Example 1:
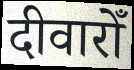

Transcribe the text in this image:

दीवारोँ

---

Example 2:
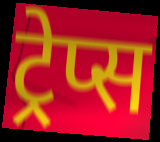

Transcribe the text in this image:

ट्रेप्स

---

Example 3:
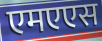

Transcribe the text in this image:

एमएएस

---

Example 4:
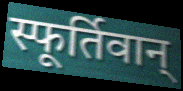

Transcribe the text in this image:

स्फूर्तिवान्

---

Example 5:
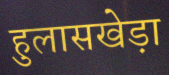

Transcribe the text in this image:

हुलासखेड़ा